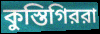
কুস্তিগিররা